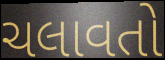
ચલાવતો